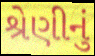
શ્રેણીનું